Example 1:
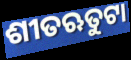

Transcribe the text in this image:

ଶୀତଋତୁଟା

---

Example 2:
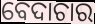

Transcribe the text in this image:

ବେଦାଚାର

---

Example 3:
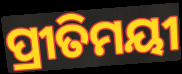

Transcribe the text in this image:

ପ୍ରୀତିମୟୀ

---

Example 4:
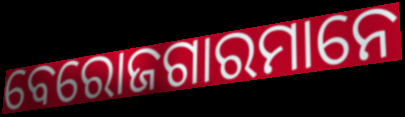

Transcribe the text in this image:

ବେରୋଜଗାରମାନେ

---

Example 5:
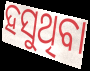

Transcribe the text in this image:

ହସୁଥିବା